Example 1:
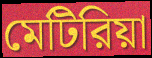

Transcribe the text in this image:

মেটিরিয়া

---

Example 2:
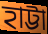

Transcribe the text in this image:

হাট্টা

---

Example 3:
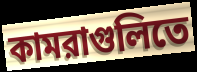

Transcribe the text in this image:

কামরাগুলিতে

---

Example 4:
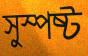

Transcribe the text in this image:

সুস্পষ্ট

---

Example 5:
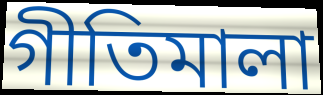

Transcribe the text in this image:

গীতিমালা